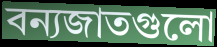
বন্যজাতগুলো